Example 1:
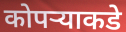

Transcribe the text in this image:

कोपऱ्याकडे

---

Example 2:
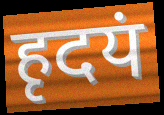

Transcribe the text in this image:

हृदयं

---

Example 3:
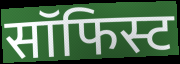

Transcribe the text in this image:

सॉफिस्ट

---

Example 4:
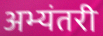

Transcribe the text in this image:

अभ्यंतरी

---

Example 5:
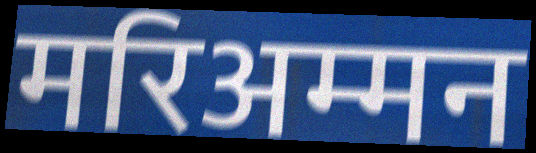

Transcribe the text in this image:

मरिअम्मन